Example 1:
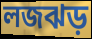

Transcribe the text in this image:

লজঝড়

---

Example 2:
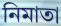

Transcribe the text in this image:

নিমাতা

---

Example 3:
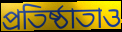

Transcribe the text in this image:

প্রতিষ্ঠাতাও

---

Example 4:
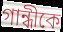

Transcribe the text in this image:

গান্ধীকে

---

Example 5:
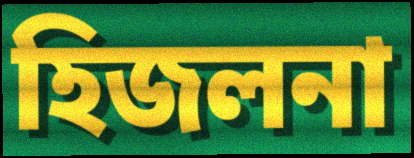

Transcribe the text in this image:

হিজলনা